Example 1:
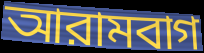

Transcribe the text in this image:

আরামবাগ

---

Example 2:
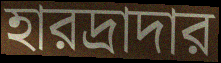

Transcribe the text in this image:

হারদ্রাদার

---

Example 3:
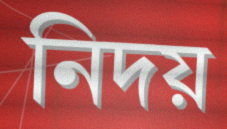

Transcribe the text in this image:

নিদয়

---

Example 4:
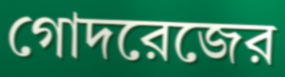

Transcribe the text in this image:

গোদরেজের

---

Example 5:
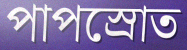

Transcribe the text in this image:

পাপস্রোত